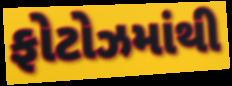
ફોટોઝમાંથી